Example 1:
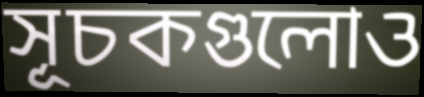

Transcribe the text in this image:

সূচকগুলোও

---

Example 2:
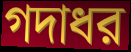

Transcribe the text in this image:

গদাধর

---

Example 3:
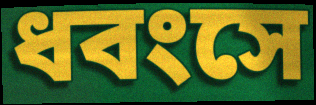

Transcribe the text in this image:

ধবংসে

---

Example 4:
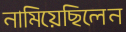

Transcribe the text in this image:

নামিয়েছিলেন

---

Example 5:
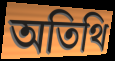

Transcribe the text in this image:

অতিথি